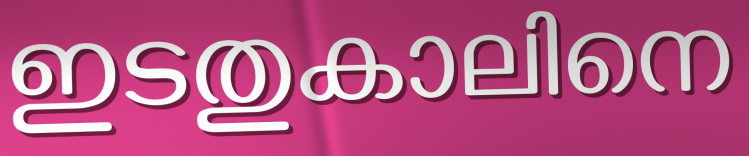
ഇടതുകാലിനെ